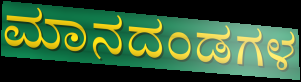
ಮಾನದಂಡಗಳ